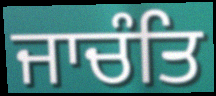
ਜਾਚੰਤਿ